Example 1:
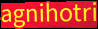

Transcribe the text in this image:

agnihotri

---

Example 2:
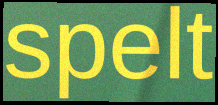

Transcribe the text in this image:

spelt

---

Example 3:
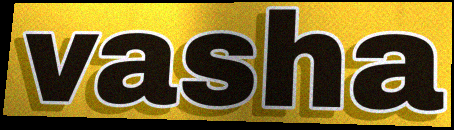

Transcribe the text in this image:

vasha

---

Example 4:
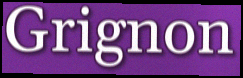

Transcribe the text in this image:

Grignon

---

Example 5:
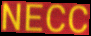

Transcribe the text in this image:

NECC